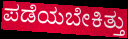
ಪಡೆಯಬೇಕಿತ್ತು